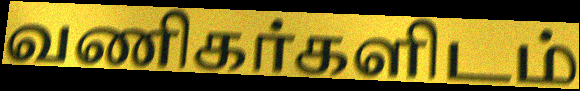
வணிகர்களிடம்